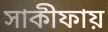
সাকীফায়